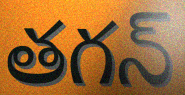
తగన్